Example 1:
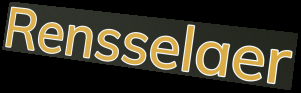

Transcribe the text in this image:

Rensselaer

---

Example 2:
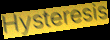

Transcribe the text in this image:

Hysteresis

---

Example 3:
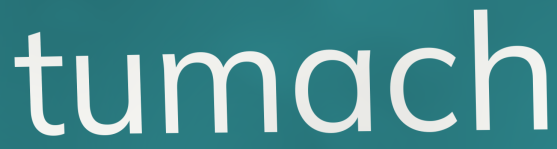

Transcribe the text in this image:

tumach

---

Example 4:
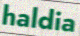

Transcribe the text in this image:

haldia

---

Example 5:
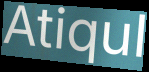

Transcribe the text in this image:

Atiqul